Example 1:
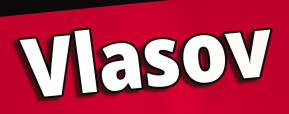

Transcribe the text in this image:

Vlasov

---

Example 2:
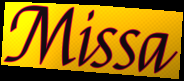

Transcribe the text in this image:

Missa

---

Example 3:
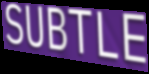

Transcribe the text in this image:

SUBTLE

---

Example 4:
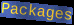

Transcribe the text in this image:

Packages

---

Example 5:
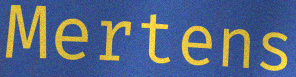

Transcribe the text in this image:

Mertens